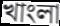
খাংলা